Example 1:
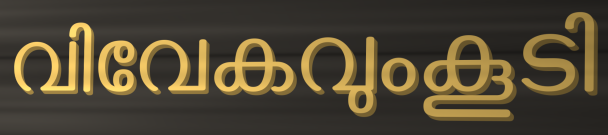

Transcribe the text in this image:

വിവേകവുംകൂടി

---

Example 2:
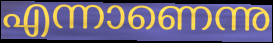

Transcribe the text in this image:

എന്നാണെന്നു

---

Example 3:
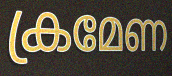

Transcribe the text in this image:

ക്രമേണ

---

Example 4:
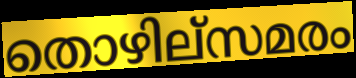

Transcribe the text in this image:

തൊഴില്സമരം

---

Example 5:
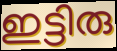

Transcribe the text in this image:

ഇട്ടിരു